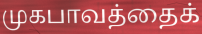
முகபாவத்தைக்